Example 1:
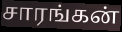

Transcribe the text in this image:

சாரங்கன்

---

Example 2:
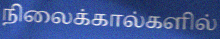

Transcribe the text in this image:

நிலைக்கால்களில்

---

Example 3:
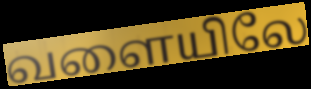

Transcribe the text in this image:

வளையிலே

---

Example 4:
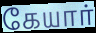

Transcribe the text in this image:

கேயார்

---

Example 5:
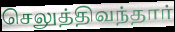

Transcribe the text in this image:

செலுத்திவந்தார்